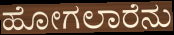
ಹೋಗಲಾರೆನು